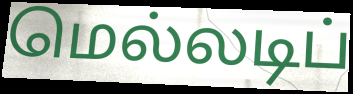
மெல்லடிப்